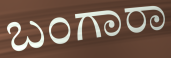
ಬಂಗಾರಾ